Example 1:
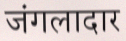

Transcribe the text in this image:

जंगलादार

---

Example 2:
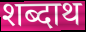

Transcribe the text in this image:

शब्दाथ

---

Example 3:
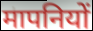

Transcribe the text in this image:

मापनियों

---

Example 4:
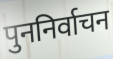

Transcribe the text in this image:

पुननिर्वाचन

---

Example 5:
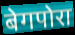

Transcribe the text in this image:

बेगपोरा